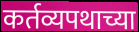
कर्तव्यपथाच्या